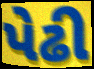
પેઢી